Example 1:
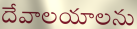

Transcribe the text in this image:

దేవాలయాలను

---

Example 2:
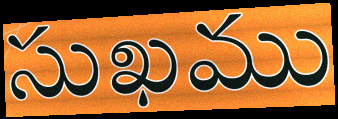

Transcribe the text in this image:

సుఖము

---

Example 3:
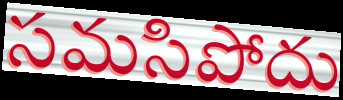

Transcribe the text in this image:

సమసిపోదు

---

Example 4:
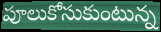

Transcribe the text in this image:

పూలుకోసుకుంటున్న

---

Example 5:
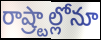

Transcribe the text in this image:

రాష్ర్టాల్లోనూ